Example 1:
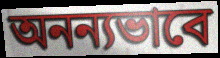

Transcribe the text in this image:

অনন্যভাবে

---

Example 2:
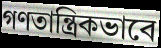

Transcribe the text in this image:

গণতান্ত্রিকভাবে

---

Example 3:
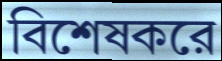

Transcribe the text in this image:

বিশেষকরে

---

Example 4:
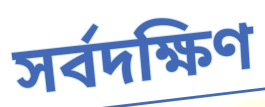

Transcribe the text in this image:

সর্বদক্ষিণ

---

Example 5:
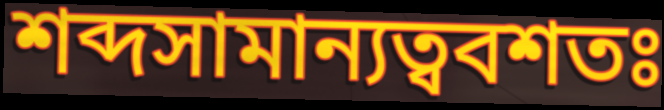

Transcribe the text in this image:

শব্দসামান্যত্ববশতঃ